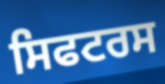
ਸਿਫਟਰਸ